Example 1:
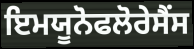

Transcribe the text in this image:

ਇਮਯੂਨੋਫਲੋਰੇਸੈਂਸ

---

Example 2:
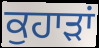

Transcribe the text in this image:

ਕੁਹਾੜਾਂ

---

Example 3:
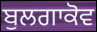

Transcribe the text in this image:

ਬੁਲਗਾਕੋਵ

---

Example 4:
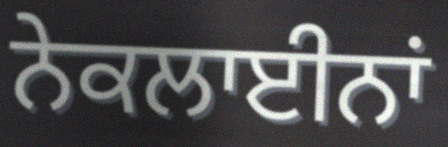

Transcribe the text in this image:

ਨੇਕਲਾਈਨਾਂ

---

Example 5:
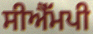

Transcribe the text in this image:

ਸੀਐੱਮਪੀ